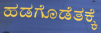
ಹಡಗೊಡೆತಕ್ಕೆ